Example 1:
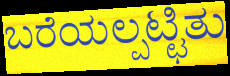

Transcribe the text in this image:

ಬರೆಯಲ್ಪಟ್ಟಿತು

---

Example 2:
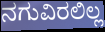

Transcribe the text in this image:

ನಗುವಿರಲಿಲ್ಲ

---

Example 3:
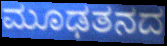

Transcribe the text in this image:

ಮೂಢತನದ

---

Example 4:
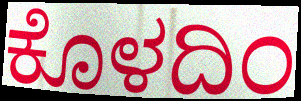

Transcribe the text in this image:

ಕೊಳದಿಂ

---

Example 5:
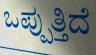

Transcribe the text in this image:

ಒಪ್ಪುತ್ತಿದೆ